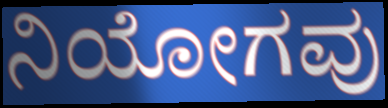
ನಿಯೋಗವು